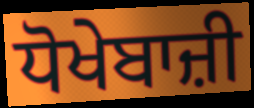
ਧੋਖੇਬਾਜ਼ੀ